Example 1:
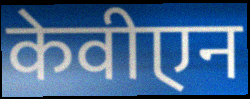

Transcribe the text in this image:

केवीएन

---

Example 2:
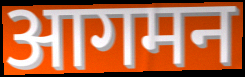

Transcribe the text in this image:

आगमन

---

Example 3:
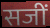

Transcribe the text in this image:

सजीं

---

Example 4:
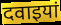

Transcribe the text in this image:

दवाइयां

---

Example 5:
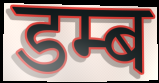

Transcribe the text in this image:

डम्ब